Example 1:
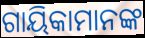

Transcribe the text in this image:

ଗାୟିକାମାନଙ୍କ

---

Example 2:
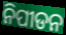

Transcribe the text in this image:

ନିପୀଡନ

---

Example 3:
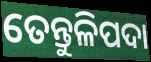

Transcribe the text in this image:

ତେନ୍ତୁଳିପଦା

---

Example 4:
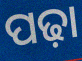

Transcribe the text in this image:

ପଢ଼ା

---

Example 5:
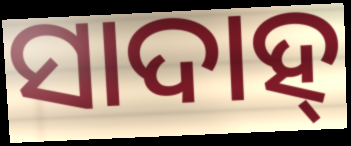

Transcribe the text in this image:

ସାଦାହ୍